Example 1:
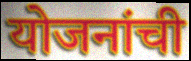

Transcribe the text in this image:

योजनांची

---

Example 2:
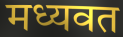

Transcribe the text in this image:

मध्यवत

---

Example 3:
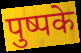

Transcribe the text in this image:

पुष्पके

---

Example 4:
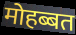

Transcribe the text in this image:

मोहब्बत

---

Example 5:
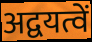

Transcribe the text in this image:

अद्वयत्वें